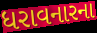
ધરાવનારના